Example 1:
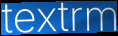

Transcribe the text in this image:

textrm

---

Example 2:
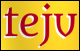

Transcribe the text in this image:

teju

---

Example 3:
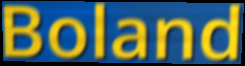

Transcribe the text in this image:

Boland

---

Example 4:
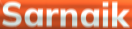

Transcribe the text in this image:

Sarnaik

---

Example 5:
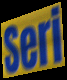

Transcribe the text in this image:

Seri